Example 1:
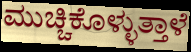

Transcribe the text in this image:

ಮುಚ್ಚಿಕೊಳ್ಳುತ್ತಾಳೆ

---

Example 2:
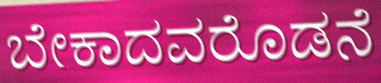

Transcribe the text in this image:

ಬೇಕಾದವರೊಡನೆ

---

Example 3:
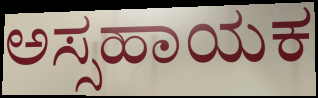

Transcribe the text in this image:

ಅಸ್ಸಹಾಯಕ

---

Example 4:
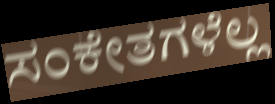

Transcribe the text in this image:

ಸಂಕೇತಗಳೆಲ್ಲ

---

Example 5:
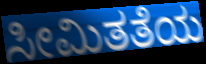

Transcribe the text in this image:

ಸೀಮಿತತೆಯ